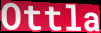
Ottla